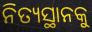
ନିତ୍ୟସ୍ଥାନକୁ